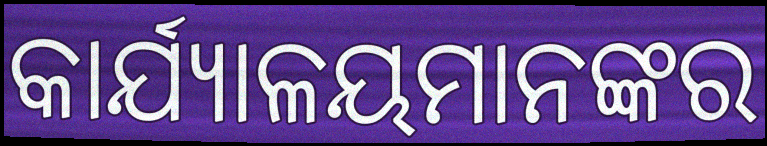
କାର୍ଯ୍ୟାଳୟମାନଙ୍କର